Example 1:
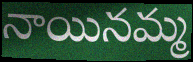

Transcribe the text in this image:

నాయినమ్మ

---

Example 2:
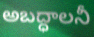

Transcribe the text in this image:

అబద్ధాలనీ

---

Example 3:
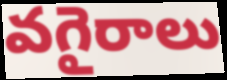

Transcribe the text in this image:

వగైరాలు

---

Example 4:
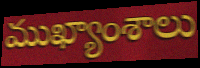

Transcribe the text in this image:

ముఖ్యాంశాలు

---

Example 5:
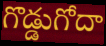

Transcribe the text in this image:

గొడ్డుగోదా